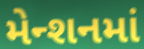
મેન્શનમાં